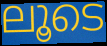
ലൂടെ